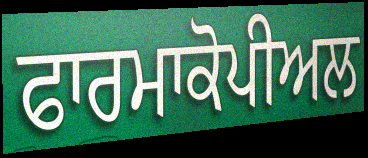
ਫਾਰਮਾਕੋਪੀਅਲ